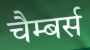
चैम्‍बर्स